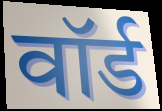
वॉर्ड